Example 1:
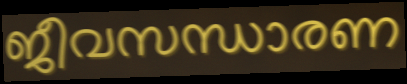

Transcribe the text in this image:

ജീവസന്ധാരണ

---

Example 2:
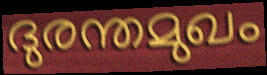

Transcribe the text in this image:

ദുരന്തമുഖം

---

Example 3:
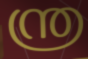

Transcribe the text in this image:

ന്ത്ര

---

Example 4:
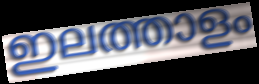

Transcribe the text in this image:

ഇലത്താളം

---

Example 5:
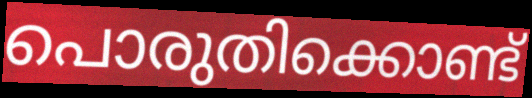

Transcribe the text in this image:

പൊരുതിക്കൊണ്ട്